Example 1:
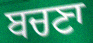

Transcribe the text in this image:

ਬਚਣਾ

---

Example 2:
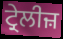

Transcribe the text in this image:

ਟ੍ਰੇਲੀਜ਼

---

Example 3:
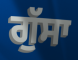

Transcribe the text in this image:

ਗੁੱਸਾ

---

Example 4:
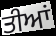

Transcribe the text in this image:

ਤੀਆਂ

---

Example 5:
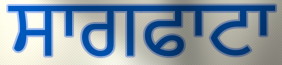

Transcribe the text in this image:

ਸਾਗਫਾਟਾ